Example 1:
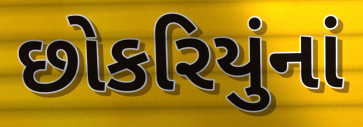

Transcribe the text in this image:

છોકરિયુંનાં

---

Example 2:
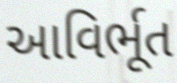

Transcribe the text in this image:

આવિર્ભૂત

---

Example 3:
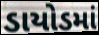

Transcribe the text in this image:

ડાયોડમાં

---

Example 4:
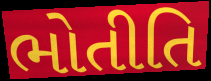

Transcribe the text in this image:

ભોતીતિ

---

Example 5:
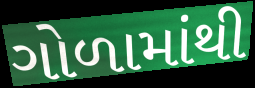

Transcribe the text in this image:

ગોળામાંથી